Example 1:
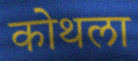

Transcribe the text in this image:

कोथला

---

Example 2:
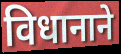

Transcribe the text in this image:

विधानाने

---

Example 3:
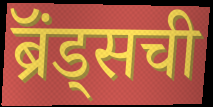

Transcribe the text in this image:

ब्रॅंड्सची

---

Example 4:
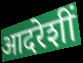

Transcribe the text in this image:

आदरेशीं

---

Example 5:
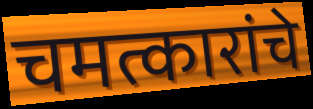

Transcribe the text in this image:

चमत्कारांचे